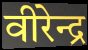
वीरेन्‍द्र